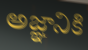
అజ్ఞానికి